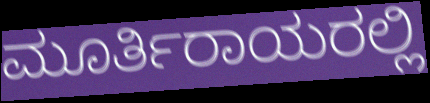
ಮೂರ್ತಿರಾಯರಲ್ಲಿ